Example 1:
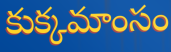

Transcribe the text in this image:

కుక్కమాంసం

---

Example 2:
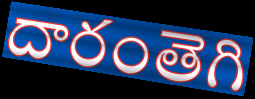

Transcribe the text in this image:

దారంతెగి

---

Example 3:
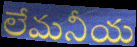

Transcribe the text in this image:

లేమనీయ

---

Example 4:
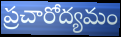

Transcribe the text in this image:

ప్రచారోద్యమం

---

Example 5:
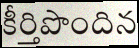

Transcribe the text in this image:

కీర్తిపొందిన